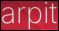
arpit